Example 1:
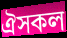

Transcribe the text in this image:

ঐসকল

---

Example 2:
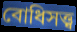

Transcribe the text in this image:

বোধিসত্ত্ব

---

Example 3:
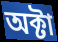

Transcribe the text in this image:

অক্টা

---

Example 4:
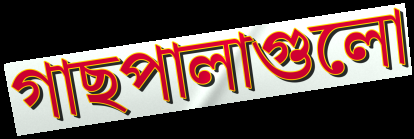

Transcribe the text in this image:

গাছপালাগুলো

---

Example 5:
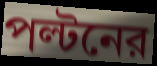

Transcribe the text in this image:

পল্টনের